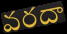
వరదా